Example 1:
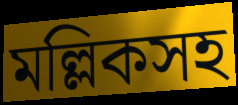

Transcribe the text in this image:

মল্লিকসহ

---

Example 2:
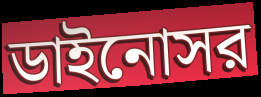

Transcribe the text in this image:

ডাইনোসর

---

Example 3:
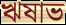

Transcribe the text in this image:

ঋষাভ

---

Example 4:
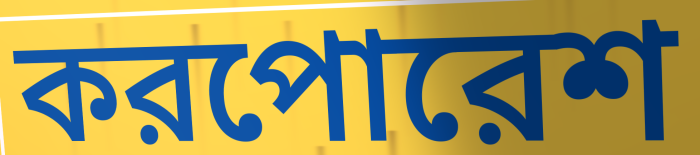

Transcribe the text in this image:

করপোরেশ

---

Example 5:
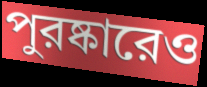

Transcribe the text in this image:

পুরষ্কারেও